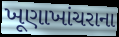
ખૂણાખાંચરાના